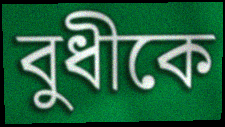
বুধীকে